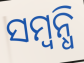
ସମ୍ବନ୍ଧି